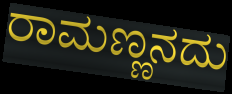
ರಾಮಣ್ಣನದು